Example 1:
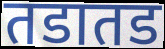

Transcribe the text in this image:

तडातड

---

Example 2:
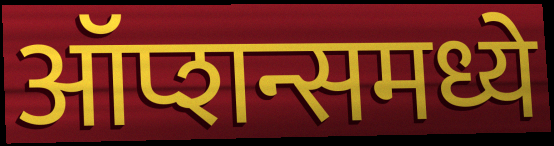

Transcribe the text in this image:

ऑप्शन्समध्ये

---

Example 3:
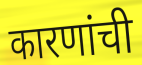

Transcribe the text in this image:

कारणांची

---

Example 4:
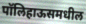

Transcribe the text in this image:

पॉलिहाऊसमधील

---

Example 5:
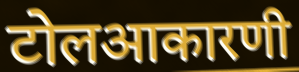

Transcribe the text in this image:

टोलआकारणी